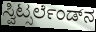
ಸ್ವಿಟ್ಸರ್ಲೆಂಡ್‌ನ